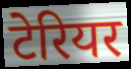
टेरियर